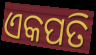
ଏକପତି